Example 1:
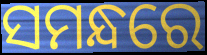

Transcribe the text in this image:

ସମନ୍ଧରେ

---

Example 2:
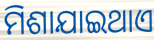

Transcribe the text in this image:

ମିଶାଯାଇଥାଏ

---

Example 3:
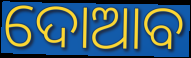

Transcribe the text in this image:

ଦୋଆବ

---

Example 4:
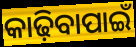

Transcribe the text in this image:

କାଢ଼ିବାପାଇଁ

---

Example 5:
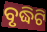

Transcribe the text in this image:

ବୃଦ୍ଧିଟି